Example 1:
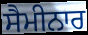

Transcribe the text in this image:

ਸੈਮੀਨਾਰ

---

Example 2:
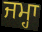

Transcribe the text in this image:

ਜਮ੍ਹਾ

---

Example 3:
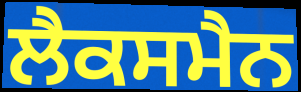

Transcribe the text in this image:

ਲੈਕਸਮੈਨ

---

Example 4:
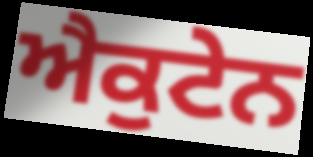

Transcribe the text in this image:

ਐਕੁਟੇਨ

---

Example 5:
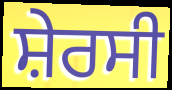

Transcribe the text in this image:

ਸ਼ੇਰਸੀ